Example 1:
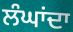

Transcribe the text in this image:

ਲੰਘਾਂਦਾ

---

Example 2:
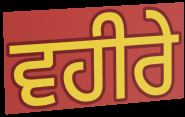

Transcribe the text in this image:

ਵਹੀਰੇ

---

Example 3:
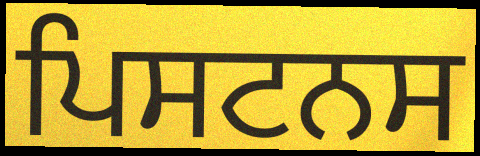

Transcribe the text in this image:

ਪਿਸਟਨਸ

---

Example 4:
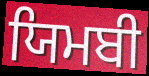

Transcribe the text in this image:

ਯਿਮਬੀ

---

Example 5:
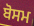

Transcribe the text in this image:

ਬੋਸਮ